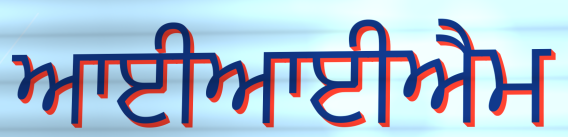
ਆਈਆਈਐਮ